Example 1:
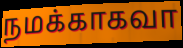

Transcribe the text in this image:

நமக்காகவா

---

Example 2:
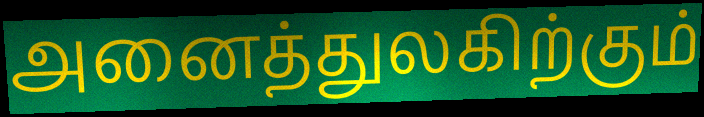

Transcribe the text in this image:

அனைத்துலகிற்கும்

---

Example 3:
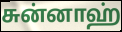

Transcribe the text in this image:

சுன்னாஹ்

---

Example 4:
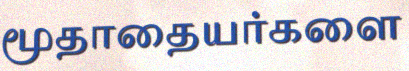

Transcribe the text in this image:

மூதாதையர்களை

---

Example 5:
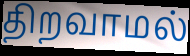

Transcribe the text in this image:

திறவாமல்